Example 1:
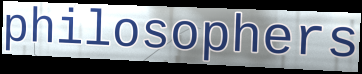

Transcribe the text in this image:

philosophers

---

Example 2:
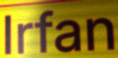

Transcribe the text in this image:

Irfan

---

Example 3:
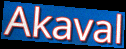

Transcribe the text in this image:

Akaval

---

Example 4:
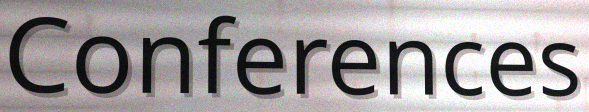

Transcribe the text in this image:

Conferences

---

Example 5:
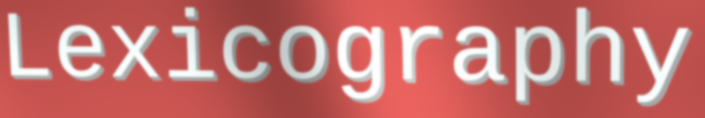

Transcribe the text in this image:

Lexicography